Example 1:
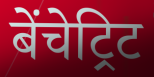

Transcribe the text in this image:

बेंचेट्रिट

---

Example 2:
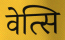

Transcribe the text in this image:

वेत्सि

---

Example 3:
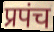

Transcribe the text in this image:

प्रपंच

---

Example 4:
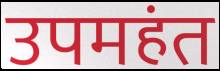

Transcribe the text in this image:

उपमहंत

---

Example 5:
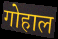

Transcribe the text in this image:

गोहाल